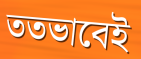
ততভাবেই